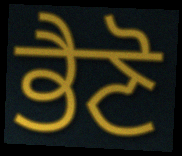
ਭੈਣੋ